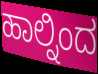
ಹಾಲ್ನಿಂದ